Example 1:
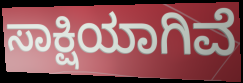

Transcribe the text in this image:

ಸಾಕ್ಷಿಯಾಗಿವೆ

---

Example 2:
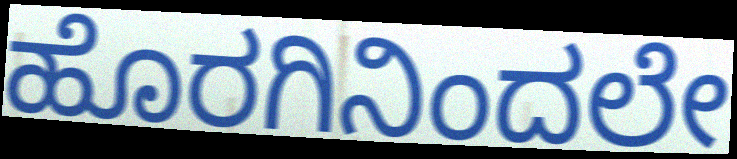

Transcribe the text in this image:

ಹೊರಗಿನಿಂದಲೇ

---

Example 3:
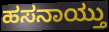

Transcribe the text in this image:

ಹಸನಾಯ್ತು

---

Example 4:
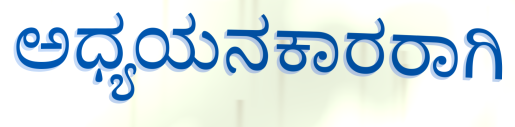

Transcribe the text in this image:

ಅಧ್ಯಯನಕಾರರಾಗಿ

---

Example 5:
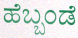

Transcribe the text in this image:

ಹೆಬ್ಬಂಡೆ